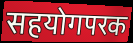
सहयोगपरक